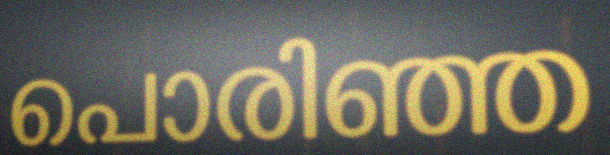
പൊരിഞ്ഞ